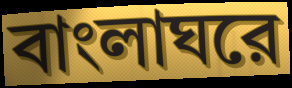
বাংলাঘরে